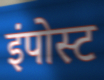
इंपोस्ट